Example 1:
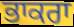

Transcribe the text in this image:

ਭਾਕਰਾ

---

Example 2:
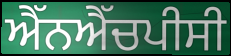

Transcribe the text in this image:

ਐੱਨਐੱਚਪੀਸੀ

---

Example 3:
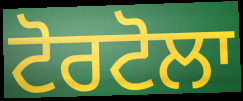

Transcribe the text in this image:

ਟੋਰਟੋਲਾ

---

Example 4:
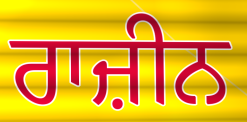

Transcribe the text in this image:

ਰਾਜ਼ੀਨ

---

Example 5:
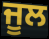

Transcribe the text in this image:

ਜੂਲ